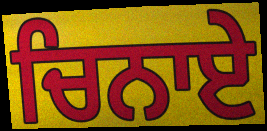
ਚਿਨਾਏ